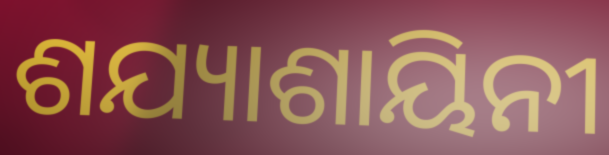
ଶଯ୍ୟାଶାୟିନୀ